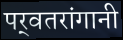
पर्वतरांगानी